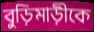
বুড়িমাড়ীকে